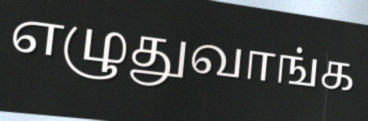
எழுதுவாங்க